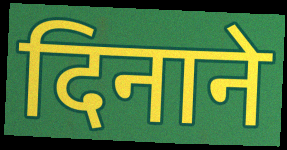
दिनाने